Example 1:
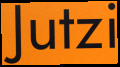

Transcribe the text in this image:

Jutzi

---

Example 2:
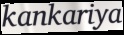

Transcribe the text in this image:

kankariya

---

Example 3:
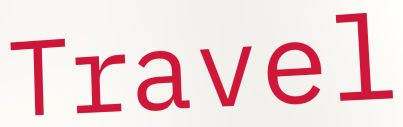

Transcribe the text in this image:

Travel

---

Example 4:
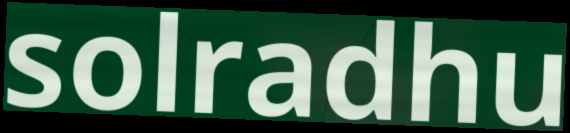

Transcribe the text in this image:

solradhu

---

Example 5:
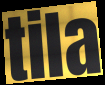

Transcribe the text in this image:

tila